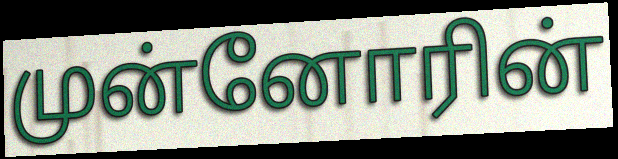
முன்னோரின்